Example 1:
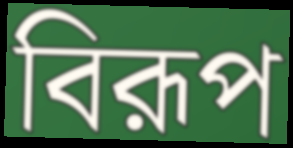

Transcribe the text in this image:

বিরূপ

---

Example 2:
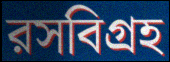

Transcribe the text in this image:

রসবিগ্রহ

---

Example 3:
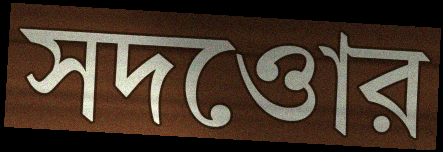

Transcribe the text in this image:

সদওোর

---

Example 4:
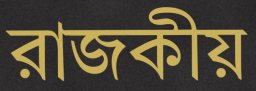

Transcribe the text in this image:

রাজকীয়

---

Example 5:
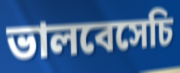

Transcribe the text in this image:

ভালবেসেচি